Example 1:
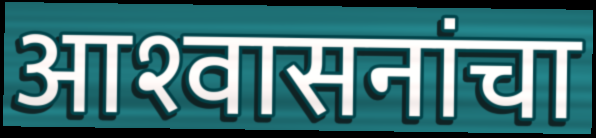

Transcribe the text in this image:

आश्वासनांचा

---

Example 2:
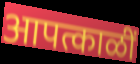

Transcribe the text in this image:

आपत्काळीं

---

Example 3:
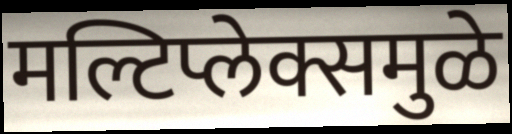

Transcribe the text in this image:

मल्टिप्लेक्समुळे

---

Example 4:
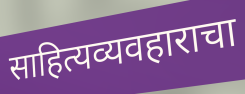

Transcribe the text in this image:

साहित्यव्यवहाराचा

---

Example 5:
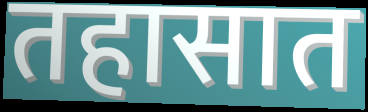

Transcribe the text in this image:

तहासात